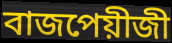
বাজপেয়ীজী